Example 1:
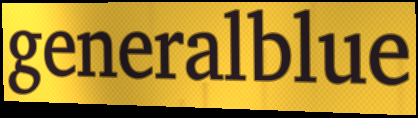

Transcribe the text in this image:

generalblue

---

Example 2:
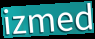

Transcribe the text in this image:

izmed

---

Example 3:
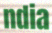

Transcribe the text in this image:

ndia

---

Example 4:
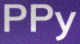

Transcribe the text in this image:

PPy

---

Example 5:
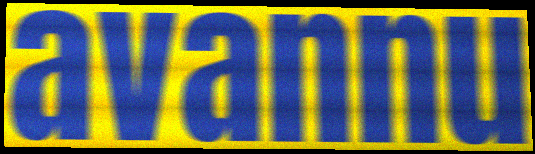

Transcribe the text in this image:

avannu